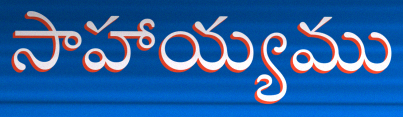
సాహాయ్యము